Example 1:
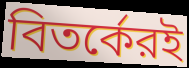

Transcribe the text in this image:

বিতর্কেরই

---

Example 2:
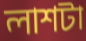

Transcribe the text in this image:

লাশটা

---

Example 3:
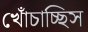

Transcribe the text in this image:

খোঁচাচ্ছিস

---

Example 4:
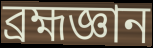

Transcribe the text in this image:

ব্রহ্মজ্ঞান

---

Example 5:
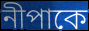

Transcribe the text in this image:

নীপাকে